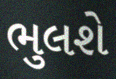
ભુલશે